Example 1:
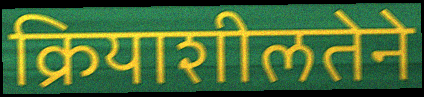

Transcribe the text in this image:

क्रियाशीलतेने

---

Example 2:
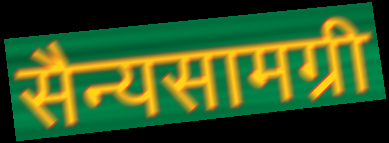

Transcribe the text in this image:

सैन्यसामग्री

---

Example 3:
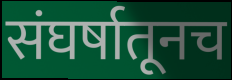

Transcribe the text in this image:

संघर्षातूनच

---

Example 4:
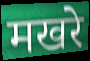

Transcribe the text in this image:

मखरे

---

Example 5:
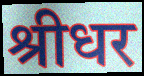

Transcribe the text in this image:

श्रीधर